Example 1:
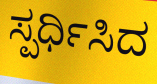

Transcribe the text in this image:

ಸ್ಪರ್ಧಿಸಿದ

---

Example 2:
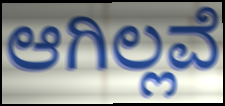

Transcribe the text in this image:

ಆಗಿಲ್ಲವೆ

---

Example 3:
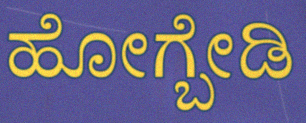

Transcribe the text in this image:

ಹೋಗ್ಬೇಡಿ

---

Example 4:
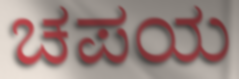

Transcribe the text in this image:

ಚಪಯ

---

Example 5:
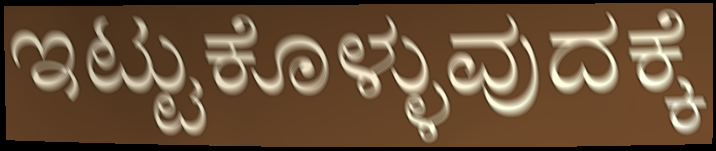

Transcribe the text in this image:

ಇಟ್ಟುಕೊಳ್ಳುವುದಕ್ಕೆ